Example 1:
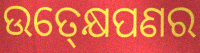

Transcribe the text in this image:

ଉତ୍କ୍ଷେପଣର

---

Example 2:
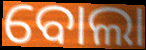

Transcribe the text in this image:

ବୋଲା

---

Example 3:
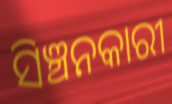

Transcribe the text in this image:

ସିଞ୍ଚନକାରୀ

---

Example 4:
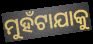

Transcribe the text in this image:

ମୁହଁଟାଯାକୁ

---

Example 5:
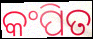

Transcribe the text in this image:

କଂପିତ